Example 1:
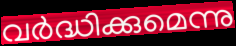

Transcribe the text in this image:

വർദ്ധിക്കുമെന്നു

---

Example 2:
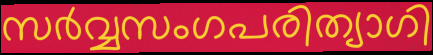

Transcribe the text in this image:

സർവ്വസംഗപരിത്യാഗി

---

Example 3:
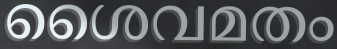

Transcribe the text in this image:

ശൈവമതം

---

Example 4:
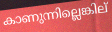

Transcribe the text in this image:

കാണുന്നില്ലെങ്കില്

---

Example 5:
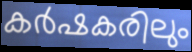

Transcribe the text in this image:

കർഷകരിലും